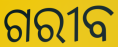
ଗରୀବ